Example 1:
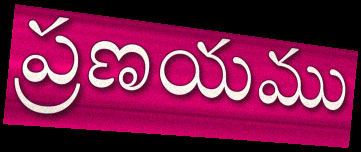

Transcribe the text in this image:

ప్రణయము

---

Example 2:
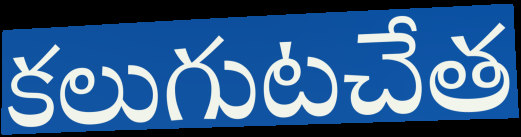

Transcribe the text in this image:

కలుగుటచేత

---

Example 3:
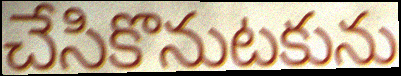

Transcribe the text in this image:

చేసికొనుటకును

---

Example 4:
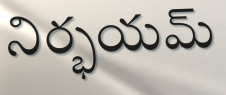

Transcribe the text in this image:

నిర్భయమ్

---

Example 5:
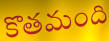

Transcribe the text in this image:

కొతమంది